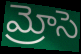
మ్రోసె